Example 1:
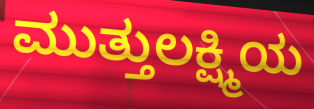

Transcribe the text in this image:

ಮುತ್ತುಲಕ್ಷ್ಮಿಯ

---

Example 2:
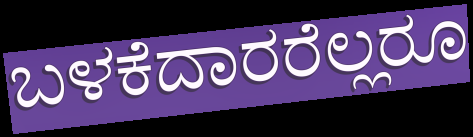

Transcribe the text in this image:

ಬಳಕೆದಾರರೆಲ್ಲರೂ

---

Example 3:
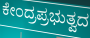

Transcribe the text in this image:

ಕೇಂದ್ರಪ್ರಭುತ್ವದ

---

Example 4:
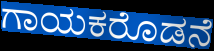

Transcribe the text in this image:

ಗಾಯಕರೊಡನೆ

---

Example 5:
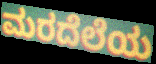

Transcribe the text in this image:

ಮರದೆಲೆಯ